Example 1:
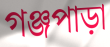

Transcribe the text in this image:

গঞ্জপাড়া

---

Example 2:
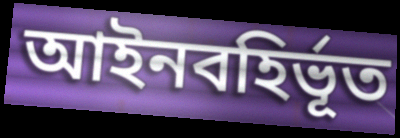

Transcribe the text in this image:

আইনবহির্ভূত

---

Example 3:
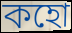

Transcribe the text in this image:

কহো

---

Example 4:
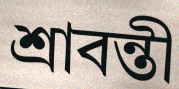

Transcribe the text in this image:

শ্রাবন্তী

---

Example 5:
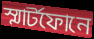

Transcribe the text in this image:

স্মার্টফোনে